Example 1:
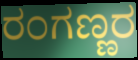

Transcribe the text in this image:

ರಂಗಣ್ಣರ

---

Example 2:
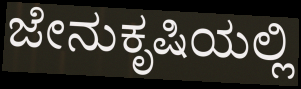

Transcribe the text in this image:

ಜೇನುಕೃಷಿಯಲ್ಲಿ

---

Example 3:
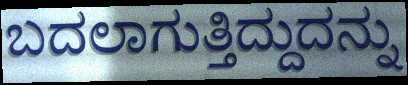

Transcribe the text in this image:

ಬದಲಾಗುತ್ತಿದ್ದುದನ್ನು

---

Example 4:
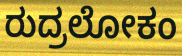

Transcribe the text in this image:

ರುದ್ರಲೋಕಂ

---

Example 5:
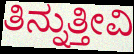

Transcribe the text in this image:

ತಿನ್ನುತ್ತೀವಿ